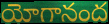
యోగానంద